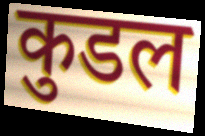
कुडल